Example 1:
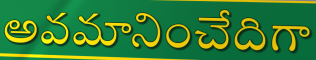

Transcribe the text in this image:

అవమానించేదిగా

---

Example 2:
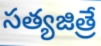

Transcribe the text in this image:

సత్యజిత్రే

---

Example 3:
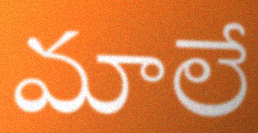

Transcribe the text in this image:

మాలే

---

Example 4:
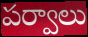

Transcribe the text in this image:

పర్వాలు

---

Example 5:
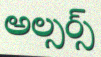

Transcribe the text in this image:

అల్సర్స్